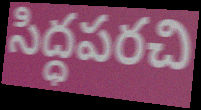
సిద్ధపరచి